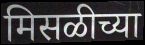
मिसळीच्या